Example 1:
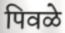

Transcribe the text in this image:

पिवळे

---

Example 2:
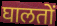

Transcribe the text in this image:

घालतों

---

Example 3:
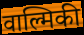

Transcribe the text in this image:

वाल्मिकी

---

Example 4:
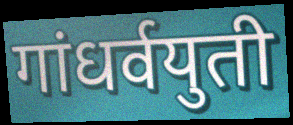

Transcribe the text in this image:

गांधर्वयुती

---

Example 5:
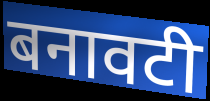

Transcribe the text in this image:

बनावटी